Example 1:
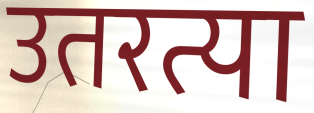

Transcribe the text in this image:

उतरत्या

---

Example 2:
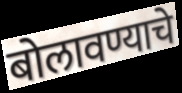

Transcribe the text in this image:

बोलावण्याचे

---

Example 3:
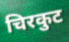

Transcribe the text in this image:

चिरकुट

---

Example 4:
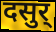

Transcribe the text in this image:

दसुर्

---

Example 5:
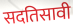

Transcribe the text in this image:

सदतिसावी